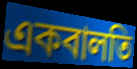
একবালতি